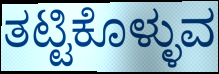
ತಟ್ಟಿಕೊಳ್ಳುವ